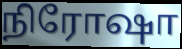
நிரோஷா